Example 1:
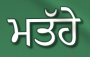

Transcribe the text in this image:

ਮਤੱਹੇ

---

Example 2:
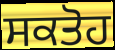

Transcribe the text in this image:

ਸਕਤੋਹ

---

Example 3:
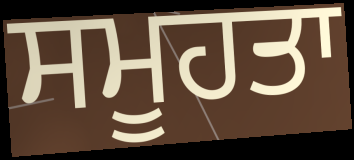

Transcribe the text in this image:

ਸਮੂਹਤਾ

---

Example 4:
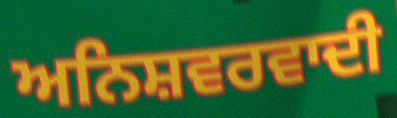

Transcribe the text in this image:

ਅਨਿਸ਼ਵਰਵਾਦੀ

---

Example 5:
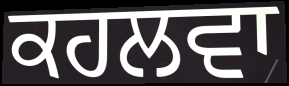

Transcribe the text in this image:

ਕਹਲਵਾ